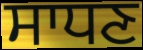
ਸਾਧਣ